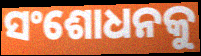
ସଂଶୋଧନକୁ